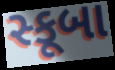
સ્કૂબા